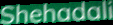
Shehadali